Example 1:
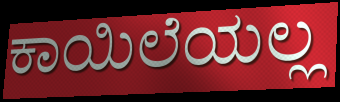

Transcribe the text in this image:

ಕಾಯಿಲೆಯಲ್ಲ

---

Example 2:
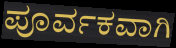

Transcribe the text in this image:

ಪೂರ್ವಕವಾಗಿ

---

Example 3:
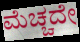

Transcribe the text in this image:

ಮೆಚ್ಚದೇ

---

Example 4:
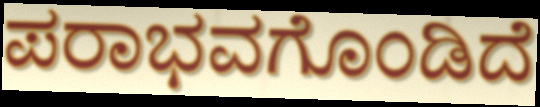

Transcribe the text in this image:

ಪರಾಭವಗೊಂಡಿದೆ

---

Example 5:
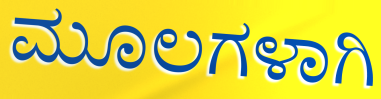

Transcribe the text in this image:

ಮೂಲಗಳಾಗಿ